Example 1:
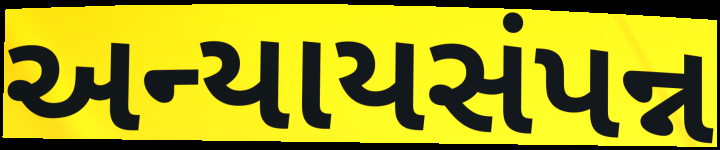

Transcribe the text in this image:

અન્યાયસંપન્ન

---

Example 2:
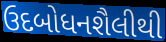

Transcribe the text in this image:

ઉદબોધનશૈલીથી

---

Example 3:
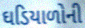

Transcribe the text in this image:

ઘડિયાળોની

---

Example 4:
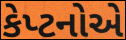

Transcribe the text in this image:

કેપ્ટનોએ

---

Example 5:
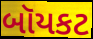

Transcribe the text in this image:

બૉયકટ